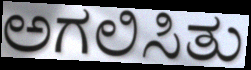
ಅಗಲಿಸಿತು